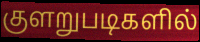
குளறுபடிகளில்